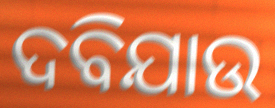
ଦବିଯାଉ